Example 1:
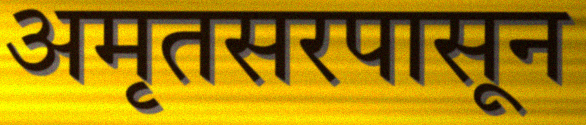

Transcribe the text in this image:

अमृतसरपासून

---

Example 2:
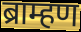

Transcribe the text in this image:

ब्राम्हण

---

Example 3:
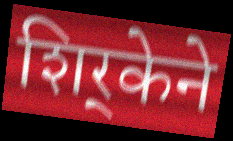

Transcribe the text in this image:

शिर्केने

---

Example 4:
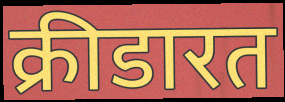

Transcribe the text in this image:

क्रीडारत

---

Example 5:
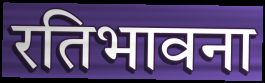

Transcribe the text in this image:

रतिभावना